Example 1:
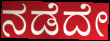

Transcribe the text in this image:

ನಡೆದೇ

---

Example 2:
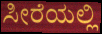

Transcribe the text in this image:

ಸೀರೆಯಲ್ಲಿ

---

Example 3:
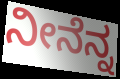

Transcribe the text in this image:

ನೀನೆನ್ನ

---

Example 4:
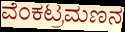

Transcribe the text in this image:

ವೆಂಕಟ್ರಮಣನ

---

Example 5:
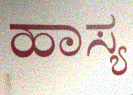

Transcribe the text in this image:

ಹಾಸ್ಯ